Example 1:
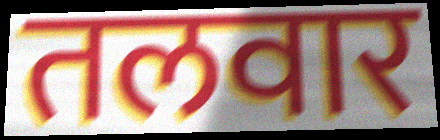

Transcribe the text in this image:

तलवार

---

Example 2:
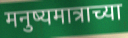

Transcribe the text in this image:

मनुष्यमात्राच्या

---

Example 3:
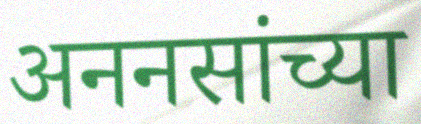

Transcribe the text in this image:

अननसांच्या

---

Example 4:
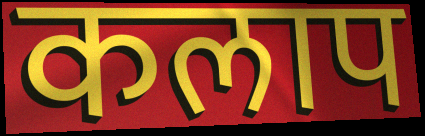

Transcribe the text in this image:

कलाप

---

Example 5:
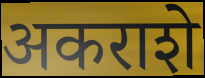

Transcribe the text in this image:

अकराशे